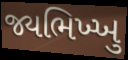
જ્યભિખ્ખુ